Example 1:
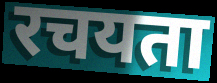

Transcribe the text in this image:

रचयता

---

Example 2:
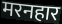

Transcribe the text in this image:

मरनहार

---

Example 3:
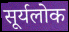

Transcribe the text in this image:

सूर्यलोक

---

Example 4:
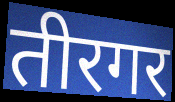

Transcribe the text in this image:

तीरगर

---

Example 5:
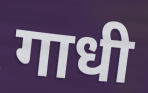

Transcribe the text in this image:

गाधी